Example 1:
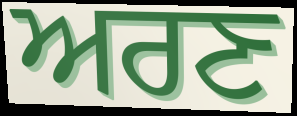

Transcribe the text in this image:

ਅਰਣ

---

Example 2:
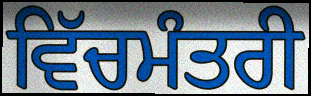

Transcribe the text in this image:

ਵਿੱਚਮੰਤਰੀ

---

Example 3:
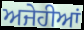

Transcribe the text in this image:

ਅਜੇਹੀਆਂ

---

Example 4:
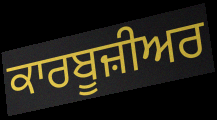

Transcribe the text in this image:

ਕਾਰਬੂਜ਼ੀਅਰ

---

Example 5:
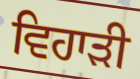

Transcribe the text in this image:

ਵਿਹਾੜੀ